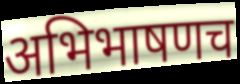
अभिभाषणच